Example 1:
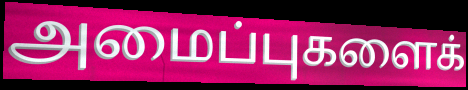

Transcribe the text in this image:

அமைப்புகளைக்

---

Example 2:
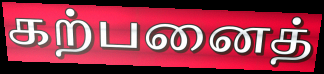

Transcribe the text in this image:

கற்பனைத்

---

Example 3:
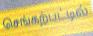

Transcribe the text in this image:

செங்கற்பட்டில்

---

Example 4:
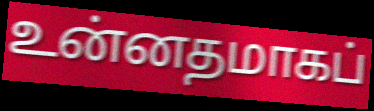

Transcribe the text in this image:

உன்னதமாகப்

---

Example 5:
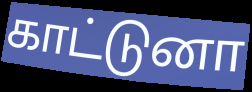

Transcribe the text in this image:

காட்டுனா